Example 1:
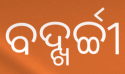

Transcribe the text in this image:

ବଦ୍ଖର୍ଚ୍ଚୀ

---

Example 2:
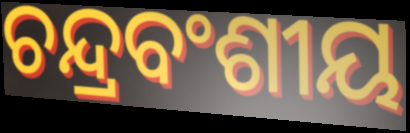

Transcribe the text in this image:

ଚନ୍ଦ୍ରବଂଶୀୟ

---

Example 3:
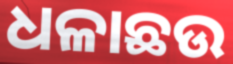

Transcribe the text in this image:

ଧଳାଛଉ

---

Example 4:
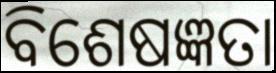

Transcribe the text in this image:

ବିଶେଷଜ୍ଞତା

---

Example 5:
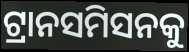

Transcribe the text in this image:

ଟ୍ରାନସମିସନକୁ